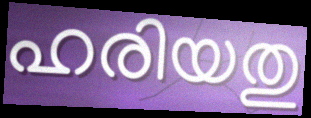
ഹരിയതു